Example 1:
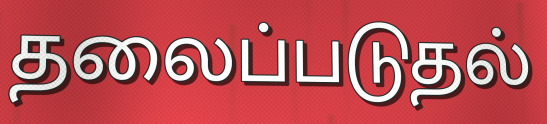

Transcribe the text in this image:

தலைப்படுதல்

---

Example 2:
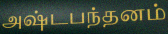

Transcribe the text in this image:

அஷ்டபந்தனம்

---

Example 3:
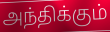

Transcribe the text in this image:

அந்திக்கும்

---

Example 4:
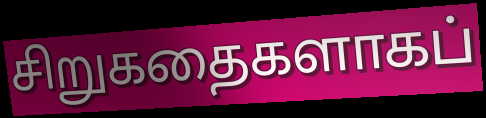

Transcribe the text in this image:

சிறுகதைகளாகப்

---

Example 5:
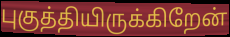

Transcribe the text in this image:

புகுத்தியிருக்கிறேன்